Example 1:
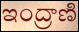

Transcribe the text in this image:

ఇంద్రాణి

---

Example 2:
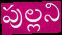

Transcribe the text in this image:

పుల్లని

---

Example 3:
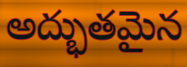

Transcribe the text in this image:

అద్భుతమైన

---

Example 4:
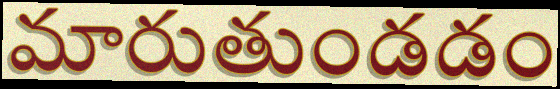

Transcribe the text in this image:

మారుతుండడం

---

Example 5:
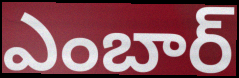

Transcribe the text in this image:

ఎంబార్